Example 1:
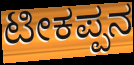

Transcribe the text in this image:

ಟೀಕಪ್ಪನ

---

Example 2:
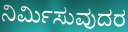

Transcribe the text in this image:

ನಿರ್ಮಿಸುವುದರ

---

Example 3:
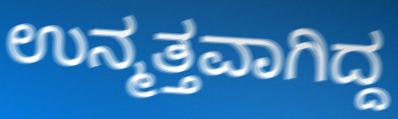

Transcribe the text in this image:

ಉನ್ಮತ್ತವಾಗಿದ್ದ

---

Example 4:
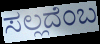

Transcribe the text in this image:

ಸಲ್ಲದೆಂಬ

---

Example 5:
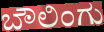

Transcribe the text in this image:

ಬೌಲಿಂಗು